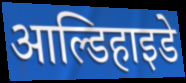
आल्डिहाइडे